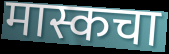
मास्कचा